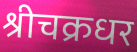
श्रीचक्रधर